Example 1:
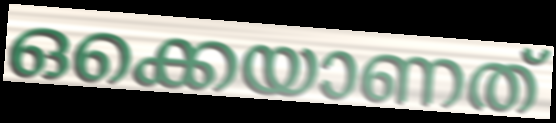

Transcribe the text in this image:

ഒക്കെയാണത്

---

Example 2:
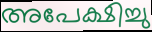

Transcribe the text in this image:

അപേക്ഷിച്ചു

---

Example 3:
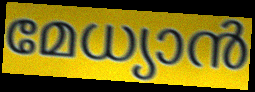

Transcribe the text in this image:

മേധ്യാൻ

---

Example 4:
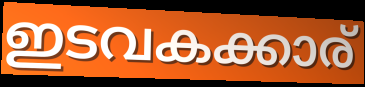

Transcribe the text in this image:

ഇടവകക്കാര്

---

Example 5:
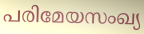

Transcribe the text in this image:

പരിമേയസംഖ്യ